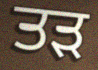
ਤੜ